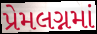
પ્રેમલગ્નમાં